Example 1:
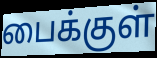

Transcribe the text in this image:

பைக்குள்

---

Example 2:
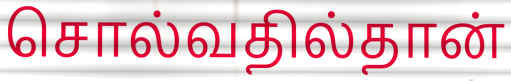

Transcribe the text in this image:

சொல்வதில்தான்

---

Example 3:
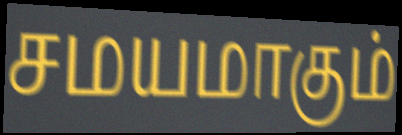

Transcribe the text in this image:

சமயமாகும்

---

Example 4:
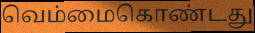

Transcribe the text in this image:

வெம்மைகொண்டது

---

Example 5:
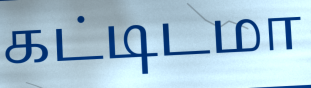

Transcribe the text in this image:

கட்டிடமா